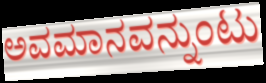
ಅವಮಾನವನ್ನುಂಟು